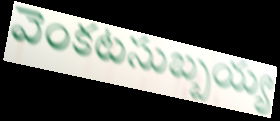
వెంకటసుబ్బయ్య